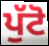
ਪੁੱਟੋ